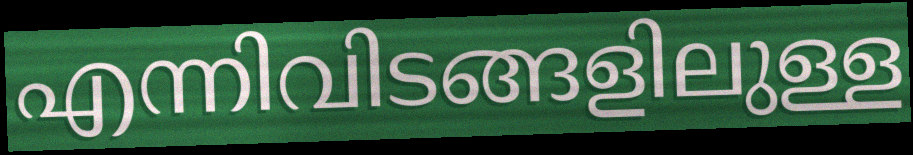
എന്നിവിടങ്ങളിലുള്ള